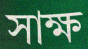
সাক্ষ